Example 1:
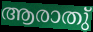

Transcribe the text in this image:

ആരാതു്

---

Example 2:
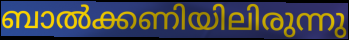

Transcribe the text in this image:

ബാൽക്കണിയിലിരുന്നു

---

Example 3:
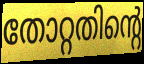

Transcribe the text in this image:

തോറ്റതിന്റെ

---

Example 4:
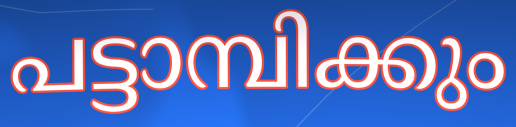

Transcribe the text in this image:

പട്ടാമ്പിക്കും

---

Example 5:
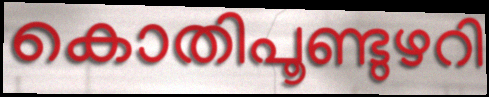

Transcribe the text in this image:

കൊതിപൂണ്ടുഴറി